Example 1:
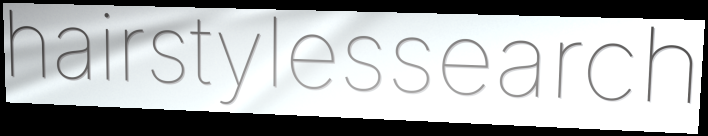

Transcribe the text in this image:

hairstylessearch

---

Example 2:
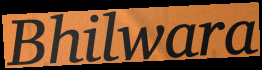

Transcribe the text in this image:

Bhilwara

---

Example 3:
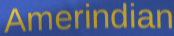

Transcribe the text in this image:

Amerindian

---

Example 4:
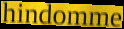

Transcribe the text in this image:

hindomme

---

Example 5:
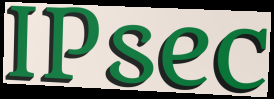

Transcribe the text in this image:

IPsec